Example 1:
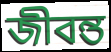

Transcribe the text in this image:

জীবন্ত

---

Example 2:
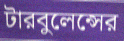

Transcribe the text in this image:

টারবুলেন্সের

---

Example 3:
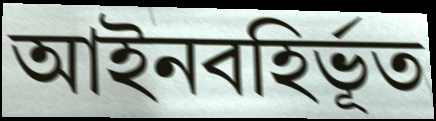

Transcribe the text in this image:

আইনবহির্ভূত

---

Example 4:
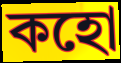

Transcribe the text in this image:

কহো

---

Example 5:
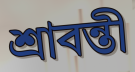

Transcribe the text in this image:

শ্রাবন্তী